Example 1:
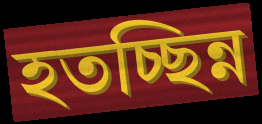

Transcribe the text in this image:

হতচ্ছিন্ন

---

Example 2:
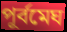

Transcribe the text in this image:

পূর্বমেঘ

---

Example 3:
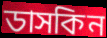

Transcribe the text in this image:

ডাসকিন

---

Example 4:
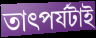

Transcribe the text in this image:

তাৎপর্যটাই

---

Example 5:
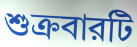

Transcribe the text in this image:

শুক্রবারটি